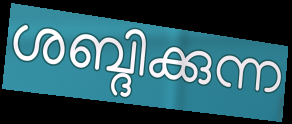
ശബ്ദിക്കുന്ന